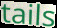
tails